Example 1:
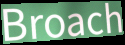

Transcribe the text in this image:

Broach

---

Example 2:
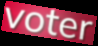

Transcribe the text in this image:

voter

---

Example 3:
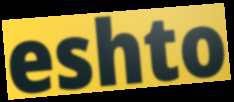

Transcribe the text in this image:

eshto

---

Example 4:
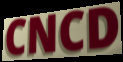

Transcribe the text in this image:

CNCD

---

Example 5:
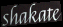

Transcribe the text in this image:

shakate